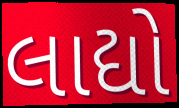
લાદ્યો